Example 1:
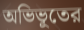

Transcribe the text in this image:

অভিভূতের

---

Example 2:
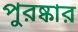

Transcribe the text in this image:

পুরষ্কার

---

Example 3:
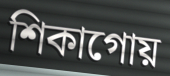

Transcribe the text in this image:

শিকাগোয়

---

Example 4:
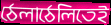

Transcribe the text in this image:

ঠেলাঠেলিতেই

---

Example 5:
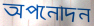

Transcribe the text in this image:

অপনোদন